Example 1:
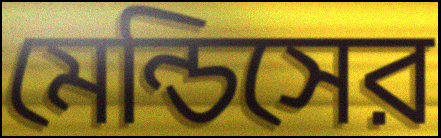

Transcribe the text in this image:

মেন্ডিসের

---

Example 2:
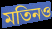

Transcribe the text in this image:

মতিনও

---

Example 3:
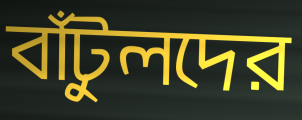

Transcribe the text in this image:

বাঁটুলদের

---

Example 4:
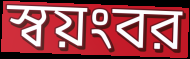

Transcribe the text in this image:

স্বয়ংবর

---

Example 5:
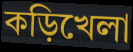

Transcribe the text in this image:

কড়িখেলা